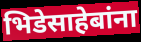
भिडेसाहेबांना